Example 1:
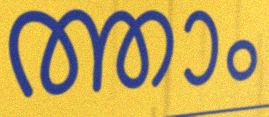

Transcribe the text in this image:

ത്താം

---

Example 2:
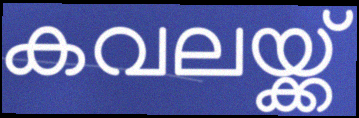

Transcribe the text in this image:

കവലയ്ക്ക്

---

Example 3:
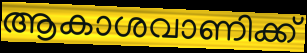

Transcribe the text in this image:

ആകാശവാണിക്ക്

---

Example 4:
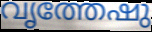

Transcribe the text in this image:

വൃത്തേഷു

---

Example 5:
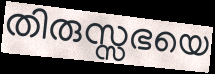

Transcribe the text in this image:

തിരുസ്സഭയെ